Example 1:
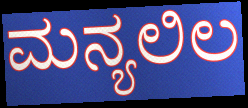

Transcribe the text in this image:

ಮನ್ಯಲಿಲ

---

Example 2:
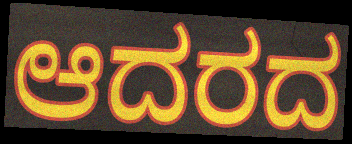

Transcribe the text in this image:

ಆದರದ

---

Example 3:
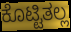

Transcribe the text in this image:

ಕೊಟ್ಟಿತಲ್ಲ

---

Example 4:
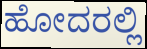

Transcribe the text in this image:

ಹೋದರಲ್ಲಿ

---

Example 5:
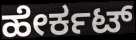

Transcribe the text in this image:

ಹೇರ್ಕಟ್